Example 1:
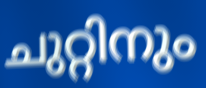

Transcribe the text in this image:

ചുറ്റിനും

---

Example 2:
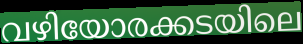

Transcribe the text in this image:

വഴിയോരക്കടയിലെ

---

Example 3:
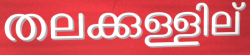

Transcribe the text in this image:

തലക്കുള്ളില്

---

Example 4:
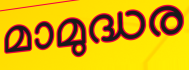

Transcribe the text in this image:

മാമുദ്ധര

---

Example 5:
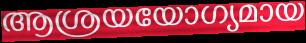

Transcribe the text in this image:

ആശ്രയയോഗ്യമായ